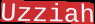
Uzziah